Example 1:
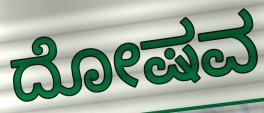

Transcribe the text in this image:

ದೋಷವ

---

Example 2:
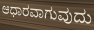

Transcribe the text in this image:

ಆಧಾರವಾಗುವುದು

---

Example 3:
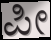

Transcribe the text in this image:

ಪೀ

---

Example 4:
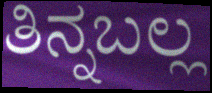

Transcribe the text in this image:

ತಿನ್ನಬಲ್ಲ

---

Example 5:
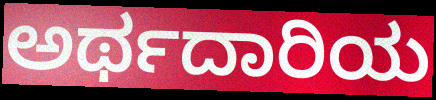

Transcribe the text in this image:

ಅರ್ಥದಾರಿಯ